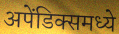
अपेंडिक्समध्ये